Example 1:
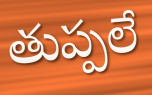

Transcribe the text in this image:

తుప్పలే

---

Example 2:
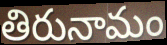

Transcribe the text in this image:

తిరునామం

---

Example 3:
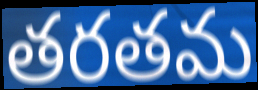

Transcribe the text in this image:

తరతమ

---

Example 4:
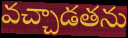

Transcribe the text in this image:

వచ్చాడతను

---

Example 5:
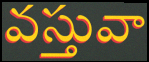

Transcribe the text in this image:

వస్తువా